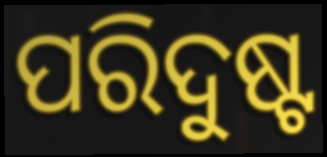
ପରିଦୁଷ୍ଟ